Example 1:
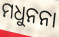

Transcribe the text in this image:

ମଧୁନନା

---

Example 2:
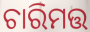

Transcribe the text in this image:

ଚାରିମତ୍ତ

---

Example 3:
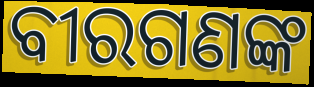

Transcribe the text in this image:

ବୀରଗଣଙ୍କ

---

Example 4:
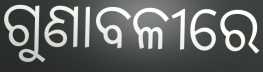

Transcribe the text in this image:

ଗୁଣାବଳୀରେ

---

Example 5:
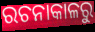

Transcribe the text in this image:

ରଚନାକାଳରୁ